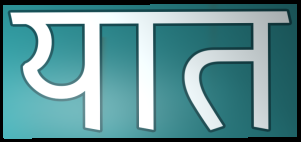
यात